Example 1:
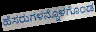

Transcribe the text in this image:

ಹೆಸರುಗಳನ್ನೊಳಗೊಂಡ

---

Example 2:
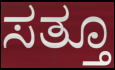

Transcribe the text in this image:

ಸತ್ತೂ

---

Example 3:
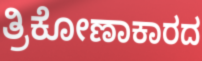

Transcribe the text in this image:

ತ್ರಿಕೋಣಾಕಾರದ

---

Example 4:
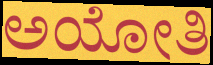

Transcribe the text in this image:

ಅಯೋತಿ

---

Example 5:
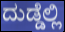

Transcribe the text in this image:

ದುಡ್ಡೆಲ್ಲಿ